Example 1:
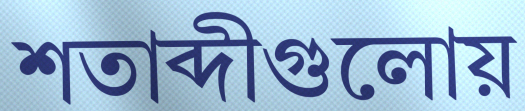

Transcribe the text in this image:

শতাব্দীগুলোয়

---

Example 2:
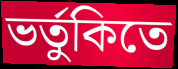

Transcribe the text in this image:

ভর্তুকিতে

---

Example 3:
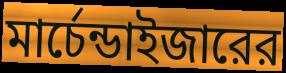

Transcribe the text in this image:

মার্চেন্ডাইজারের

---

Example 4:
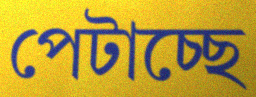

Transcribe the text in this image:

পেটাচ্ছে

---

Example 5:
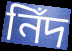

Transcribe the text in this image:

নিঁদ